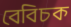
বেবিচক